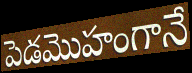
పెడమొహంగానే